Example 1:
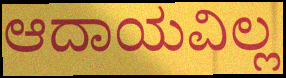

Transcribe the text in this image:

ಆದಾಯವಿಲ್ಲ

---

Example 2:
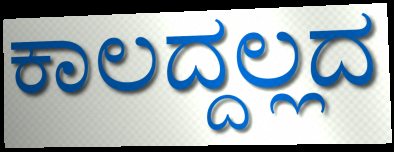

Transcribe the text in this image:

ಕಾಲದ್ದಲ್ಲದ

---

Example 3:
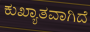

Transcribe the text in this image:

ಕುಖ್ಯಾತವಾಗಿದೆ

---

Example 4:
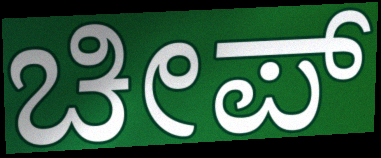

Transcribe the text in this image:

ಚೀಪ್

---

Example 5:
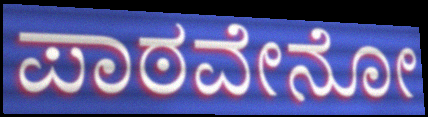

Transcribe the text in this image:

ಪಾಠವೇನೋ